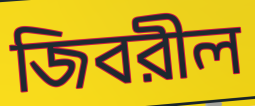
জিবরীল